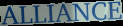
ALLIANCE